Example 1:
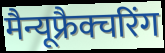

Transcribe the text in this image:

मैन्यूफ्रैक्चरिंग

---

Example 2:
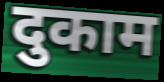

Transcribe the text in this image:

दुकाम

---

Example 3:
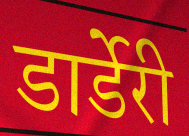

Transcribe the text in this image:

डार्डेरी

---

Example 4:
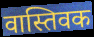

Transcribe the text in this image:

वास्तिवक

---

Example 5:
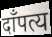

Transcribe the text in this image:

दाँपत्य